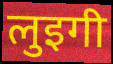
लुइगी